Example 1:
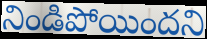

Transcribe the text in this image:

నిండిపోయిందని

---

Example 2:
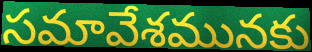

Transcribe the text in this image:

సమావేశమునకు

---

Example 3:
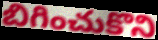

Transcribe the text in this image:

బిగించుకొని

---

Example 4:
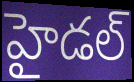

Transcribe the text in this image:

హైడల్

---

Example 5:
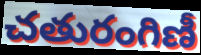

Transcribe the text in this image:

చతురంగిణీ